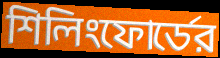
শিলিংফোর্ডের